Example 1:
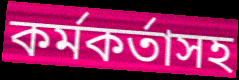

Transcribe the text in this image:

কর্মকর্তাসহ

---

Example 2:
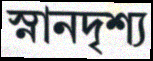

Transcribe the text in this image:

স্নানদৃশ্য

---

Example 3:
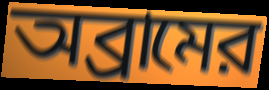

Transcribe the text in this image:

অব্রামের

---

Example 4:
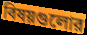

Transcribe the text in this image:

বিষয়গুলোর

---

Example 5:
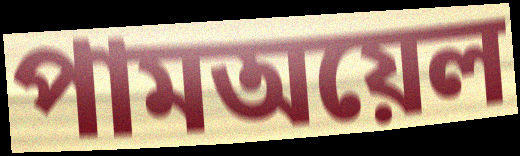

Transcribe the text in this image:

পামঅয়েল